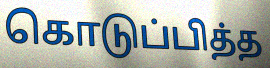
கொடுப்பித்த